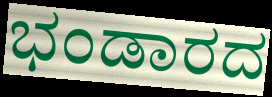
ಭಂಡಾರದ